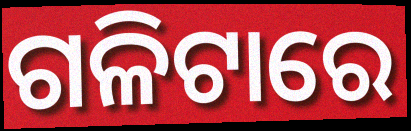
ଗଳିଟାରେ